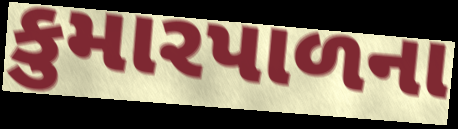
કુમારપાળના